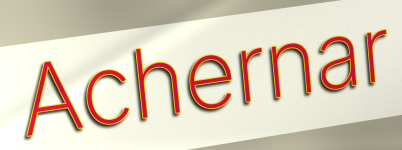
Achernar